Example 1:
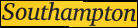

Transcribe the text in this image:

Southampton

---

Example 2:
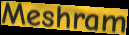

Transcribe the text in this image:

Meshram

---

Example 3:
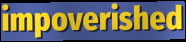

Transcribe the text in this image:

impoverished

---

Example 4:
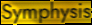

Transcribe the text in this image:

Symphysis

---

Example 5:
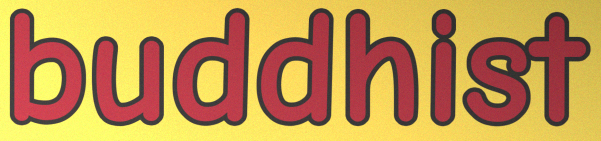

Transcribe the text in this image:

buddhist